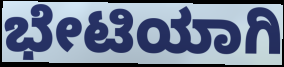
ಭೇಟಿಯಾಗಿ